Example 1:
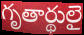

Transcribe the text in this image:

గృతార్థులై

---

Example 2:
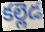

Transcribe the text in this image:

కల్లెడ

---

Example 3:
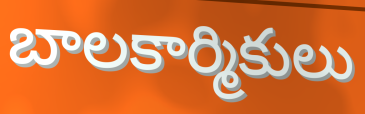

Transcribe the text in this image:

బాలకార్మికులు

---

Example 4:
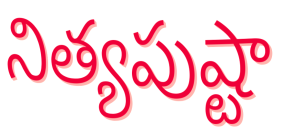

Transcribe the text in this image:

నిత్యపుష్టా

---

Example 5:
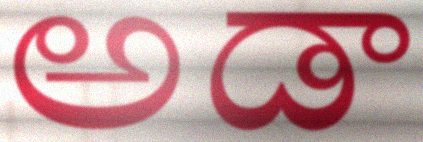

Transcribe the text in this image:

అడా